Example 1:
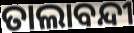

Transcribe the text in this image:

ତାଲାବନ୍ଦୀ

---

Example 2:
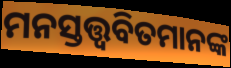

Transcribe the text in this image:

ମନସ୍ତତ୍ତ୍ୱବିତମାନଙ୍କ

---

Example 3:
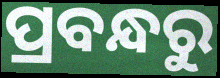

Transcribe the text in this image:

ପ୍ରବନ୍ଧରୁ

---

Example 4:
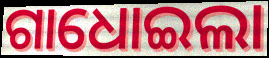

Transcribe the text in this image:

ଗାଧୋଇଲା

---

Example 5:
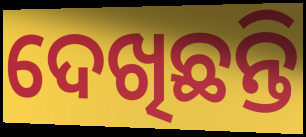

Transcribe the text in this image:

ଦେଖିଛନ୍ତି